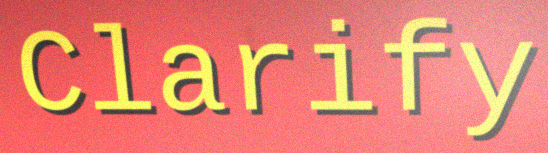
Clarify